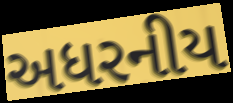
અધરનીય